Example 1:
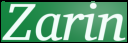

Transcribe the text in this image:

Zarin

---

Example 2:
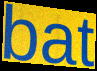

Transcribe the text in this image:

bat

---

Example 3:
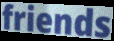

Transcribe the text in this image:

friends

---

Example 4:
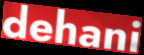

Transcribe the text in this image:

dehani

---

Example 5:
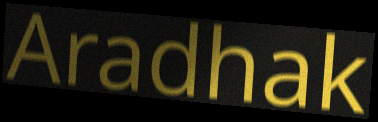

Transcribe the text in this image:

Aradhak